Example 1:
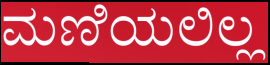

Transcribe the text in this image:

ಮಣಿಯಲಿಲ್ಲ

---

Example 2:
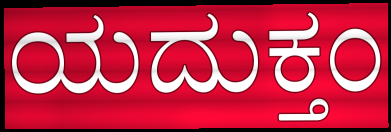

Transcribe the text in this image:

ಯದುಕ್ತಂ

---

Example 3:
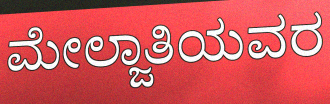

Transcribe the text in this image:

ಮೇಲ್ಜಾತಿಯವರ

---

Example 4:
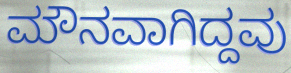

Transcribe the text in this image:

ಮೌನವಾಗಿದ್ದವು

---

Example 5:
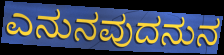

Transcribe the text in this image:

ಎನುನವುದನುನ